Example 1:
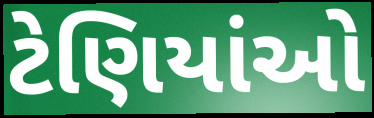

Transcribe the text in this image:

ટેણિયાંઓ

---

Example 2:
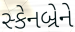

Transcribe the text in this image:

સ્કેનબ્રેને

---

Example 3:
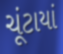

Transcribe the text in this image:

ચૂંટાયાં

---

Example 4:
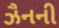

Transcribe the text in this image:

ઝૈનની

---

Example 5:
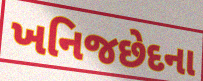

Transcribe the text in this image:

ખનિજછેદના